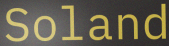
Soland